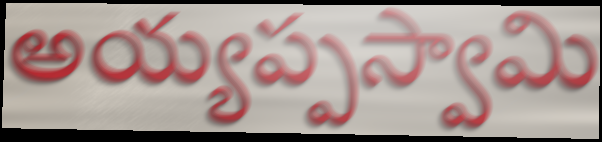
అయ్యప్పస్వామి